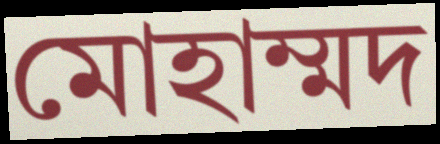
মোহাম্মদ